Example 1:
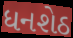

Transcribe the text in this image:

ધનશેઠ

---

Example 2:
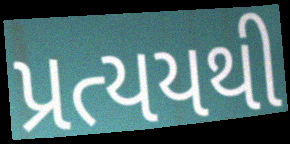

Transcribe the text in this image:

પ્રત્યયથી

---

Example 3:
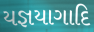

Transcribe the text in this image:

યજ્ઞયાગાદિ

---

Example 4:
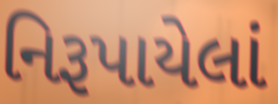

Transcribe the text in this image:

નિરૂપાયેલાં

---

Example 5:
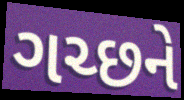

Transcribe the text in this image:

ગચ્છને